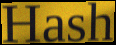
Hash